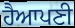
ਹੈਆਪਣੀ